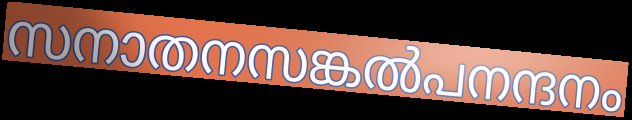
സനാതനസങ്കൽപനന്ദനം